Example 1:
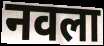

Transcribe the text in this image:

नवला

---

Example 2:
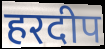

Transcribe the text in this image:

हरदीप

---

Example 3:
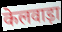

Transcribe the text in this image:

केलवाड़ा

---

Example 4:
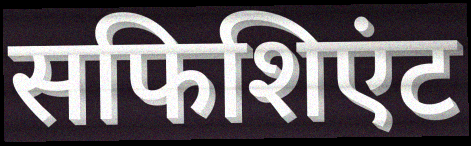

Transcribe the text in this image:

सफिशिएंट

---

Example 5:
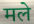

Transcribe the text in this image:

मले